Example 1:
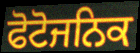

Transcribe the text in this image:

ਫੋਟੋਜਨਿਕ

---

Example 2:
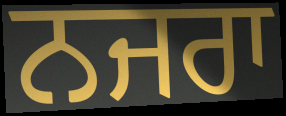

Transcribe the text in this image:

ਨਜਰਾ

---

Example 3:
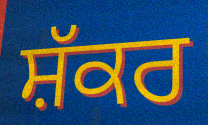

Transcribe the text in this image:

ਸ਼ੱਕਰ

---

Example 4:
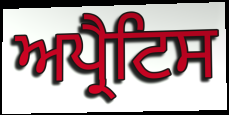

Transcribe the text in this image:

ਅਪ੍ਰੈਟਿਸ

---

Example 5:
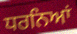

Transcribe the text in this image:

ਧਰਨਿਆਂ